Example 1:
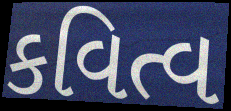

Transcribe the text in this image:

કવિત્વ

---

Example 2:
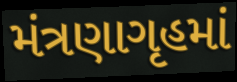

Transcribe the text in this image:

મંત્રણાગૃહમાં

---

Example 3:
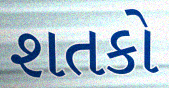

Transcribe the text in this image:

શતકો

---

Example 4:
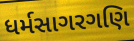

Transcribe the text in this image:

ધર્મસાગરગણિ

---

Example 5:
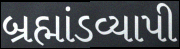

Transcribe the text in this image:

બ્રહ્માંડવ્યાપી